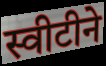
स्वीटीने